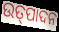
ଉତ୍‍ପାଦନ